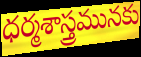
ధర్మశాస్త్రమునకు